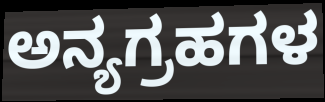
ಅನ್ಯಗ್ರಹಗಳ